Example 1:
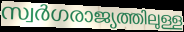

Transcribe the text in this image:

സ്വർഗരാജ്യത്തിലുള്ള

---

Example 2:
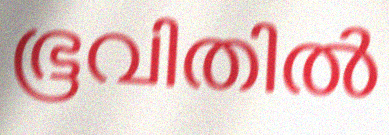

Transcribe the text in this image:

ഭൂവിതിൽ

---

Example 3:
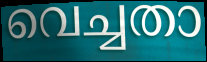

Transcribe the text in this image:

വെച്ചതാ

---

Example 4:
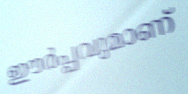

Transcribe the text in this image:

ഈർപ്പവുമാണ്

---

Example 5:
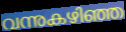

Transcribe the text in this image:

വന്നുകഴിഞ്ഞ